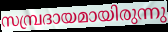
സമ്പ്രദായമായിരുന്നു